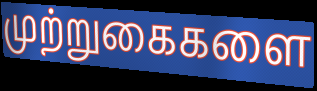
முற்றுகைகளை